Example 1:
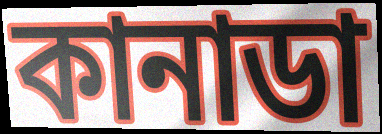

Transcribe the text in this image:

কানাডা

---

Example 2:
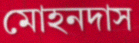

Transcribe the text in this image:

মোহনদাস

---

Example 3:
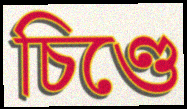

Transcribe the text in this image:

চিণ্ডে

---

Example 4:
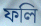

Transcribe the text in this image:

ফলি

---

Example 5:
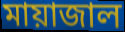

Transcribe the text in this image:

মায়াজাল